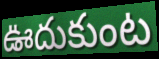
ఊదుకుంట